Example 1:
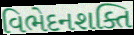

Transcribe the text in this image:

વિભેદનશક્તિ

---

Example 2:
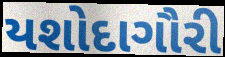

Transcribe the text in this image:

યશોદાગૌરી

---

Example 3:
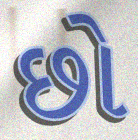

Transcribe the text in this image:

છો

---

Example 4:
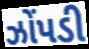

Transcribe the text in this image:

ઝોંપડી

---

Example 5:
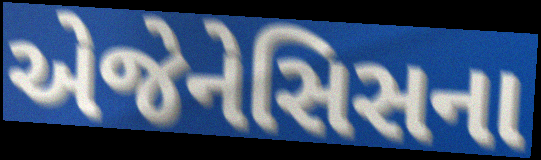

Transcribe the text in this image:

એજેનેસિસના